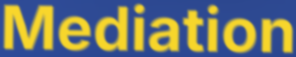
Mediation